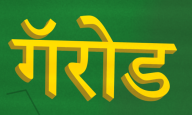
गॅरोड